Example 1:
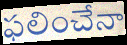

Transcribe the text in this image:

ఫలించేనా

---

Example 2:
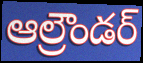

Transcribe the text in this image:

ఆల్రౌండర్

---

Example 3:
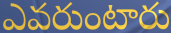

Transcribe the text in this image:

ఎవరుంటారు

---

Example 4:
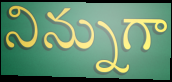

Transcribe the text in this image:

నిన్నుగా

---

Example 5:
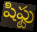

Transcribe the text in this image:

షిఫ్టు